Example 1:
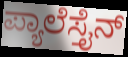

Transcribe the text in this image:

ಪ್ಯಾಲೆಸ್ತೈನ್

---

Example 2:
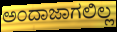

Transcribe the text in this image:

ಅಂದಾಜಾಗಲಿಲ್ಲ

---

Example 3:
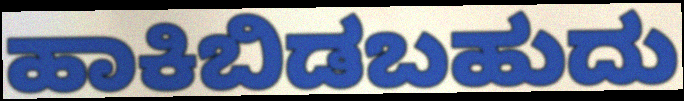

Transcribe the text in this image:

ಹಾಕಿಬಿಡಬಹುದು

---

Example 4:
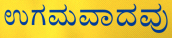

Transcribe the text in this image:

ಉಗಮವಾದವು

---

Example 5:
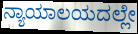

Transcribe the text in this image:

ನ್ಯಾಯಾಲಯದಲ್ಲೇ